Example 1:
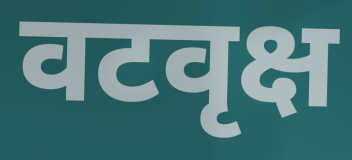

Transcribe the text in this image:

वटवृक्ष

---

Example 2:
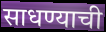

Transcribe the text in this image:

साधण्याची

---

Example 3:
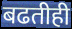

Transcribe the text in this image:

बढतीही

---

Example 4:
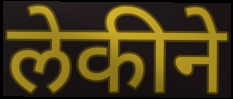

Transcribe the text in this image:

लेकीने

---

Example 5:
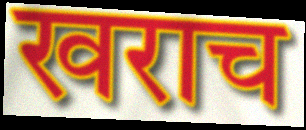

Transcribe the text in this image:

खराच